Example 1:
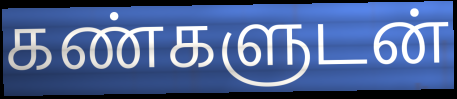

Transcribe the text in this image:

கண்களுடன்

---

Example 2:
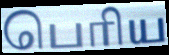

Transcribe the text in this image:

பெரிய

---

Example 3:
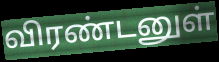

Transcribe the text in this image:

விரண்டனுள்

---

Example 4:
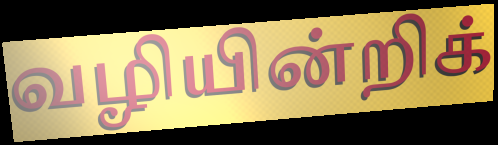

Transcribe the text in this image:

வழியின்றிக்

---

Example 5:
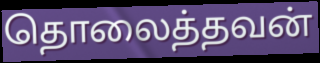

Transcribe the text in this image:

தொலைத்தவன்